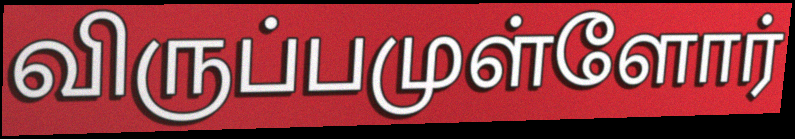
விருப்பமுள்ளோர்